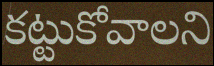
కట్టుకోవాలని